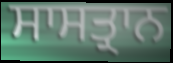
ਸਾਸਤ੍ਰਾਨ